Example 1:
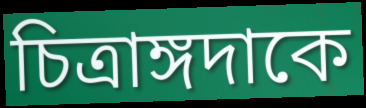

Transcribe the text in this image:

চিত্রাঙ্গদাকে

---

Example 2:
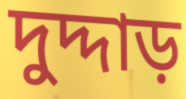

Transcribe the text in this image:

দুদ্দাড়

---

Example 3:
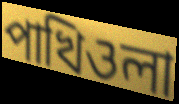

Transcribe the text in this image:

পাখিওলা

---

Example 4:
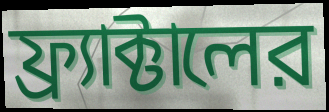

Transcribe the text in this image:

ফ্র্যাক্টালের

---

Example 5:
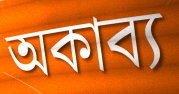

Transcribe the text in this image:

অকাব্য